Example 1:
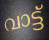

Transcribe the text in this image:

വാട്ട്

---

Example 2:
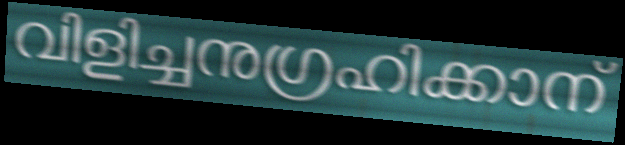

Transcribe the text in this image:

വിളിച്ചനുഗ്രഹിക്കാന്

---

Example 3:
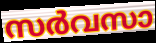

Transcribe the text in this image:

സർവസാ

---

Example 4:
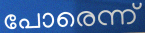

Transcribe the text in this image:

പോരെന്ന്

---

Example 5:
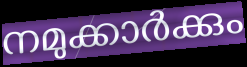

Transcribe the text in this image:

നമുക്കാർക്കും